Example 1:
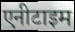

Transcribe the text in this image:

एनीटाइम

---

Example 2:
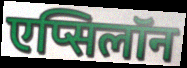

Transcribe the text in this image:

एप्सिलॉन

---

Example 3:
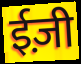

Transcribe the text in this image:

ईज़ी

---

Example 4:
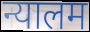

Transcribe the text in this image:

न्यालम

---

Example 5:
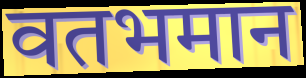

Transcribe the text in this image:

वतभमान